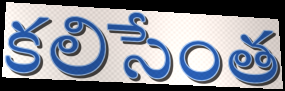
కలిసేంత